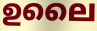
ഉലൈ